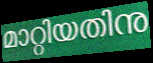
മാറ്റിയതിനു